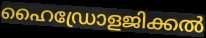
ഹൈഡ്രോളജിക്കൽ